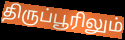
திருப்பூரிலும்